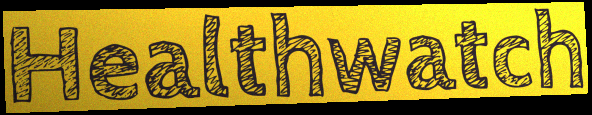
Healthwatch